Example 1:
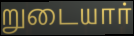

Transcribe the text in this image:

றுடையார்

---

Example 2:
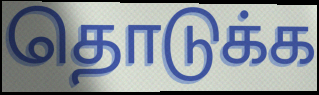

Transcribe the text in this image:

தொடுக்க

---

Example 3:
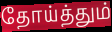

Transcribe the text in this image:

தோய்த்தும்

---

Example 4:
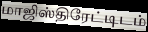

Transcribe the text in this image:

மாஜிஸ்திரேட்டிடம்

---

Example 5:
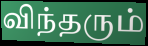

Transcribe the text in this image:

விந்தரும்